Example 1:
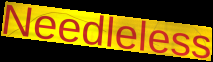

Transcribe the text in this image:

Needleless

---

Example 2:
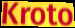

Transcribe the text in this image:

Kroto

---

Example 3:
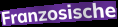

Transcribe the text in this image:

Franzosische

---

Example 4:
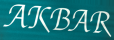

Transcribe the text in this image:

AKBAR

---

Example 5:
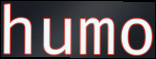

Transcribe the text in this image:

humo